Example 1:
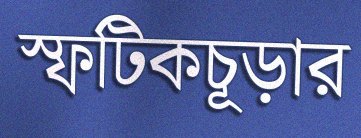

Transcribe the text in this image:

স্ফটিকচূড়ার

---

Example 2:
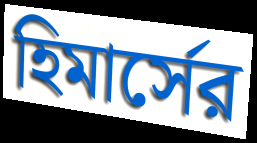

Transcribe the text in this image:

হিমার্সের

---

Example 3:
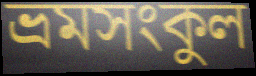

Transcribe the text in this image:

ভ্রমসংকুল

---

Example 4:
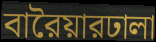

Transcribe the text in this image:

বারৈয়ারঢালা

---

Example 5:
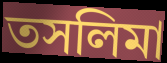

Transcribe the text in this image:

তসলিমা